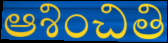
ఆశించితి